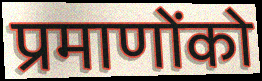
प्रमाणोंको